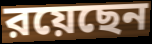
রয়েছেন